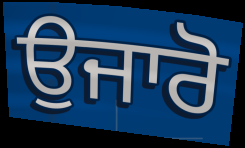
ਉਜਾਰੋ